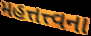
મહત્તત્ત્વના